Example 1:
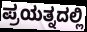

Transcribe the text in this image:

ಪ್ರಯತ್ನದಲ್ಲಿ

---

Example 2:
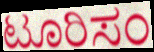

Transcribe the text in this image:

ಟೂರಿಸಂ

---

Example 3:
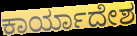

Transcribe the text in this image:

ಕಾರ್ಯಾದೇಶ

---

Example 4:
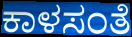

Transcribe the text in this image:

ಕಾಳಸಂತೆ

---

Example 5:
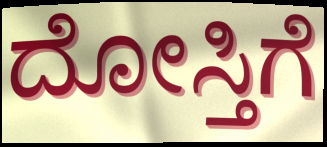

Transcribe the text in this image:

ದೋಸ್ತಿಗೆ